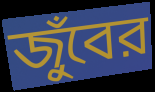
জুঁবের